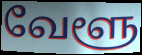
வேளூ